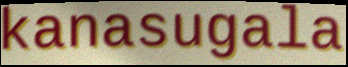
kanasugala